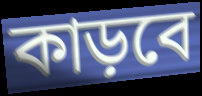
কাড়বে